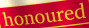
honoured